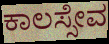
ಕಾಲಸ್ಸೇವ